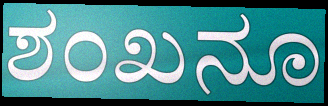
ಶಂಖನೂ